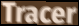
Tracer